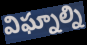
విఘ్నాల్ని